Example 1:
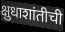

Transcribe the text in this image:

क्षुधाशांतीची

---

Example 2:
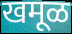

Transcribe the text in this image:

खमूळ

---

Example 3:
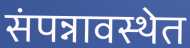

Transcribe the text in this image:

संपन्नावस्थेत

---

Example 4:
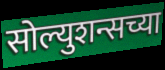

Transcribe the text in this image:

सोल्युशन्सच्या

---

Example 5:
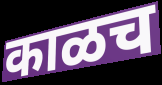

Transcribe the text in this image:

काळच